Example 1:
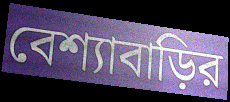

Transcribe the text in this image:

বেশ্যাবাড়ির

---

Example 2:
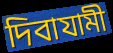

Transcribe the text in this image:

দিবাযামী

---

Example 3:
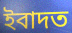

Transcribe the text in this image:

ইবাদত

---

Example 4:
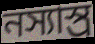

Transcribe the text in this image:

নস্যাস্ত্র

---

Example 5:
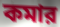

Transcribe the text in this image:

কমার